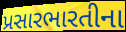
પ્રસારભારતીના